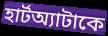
হার্টঅ্যাটাকে